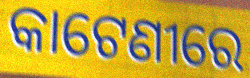
କାଟେଣୀରେ